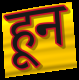
हून